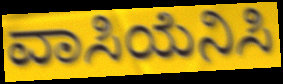
ವಾಸಿಯೆನಿಸಿ